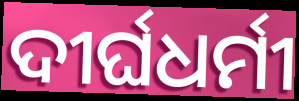
ଦୀର୍ଘଧର୍ମୀ